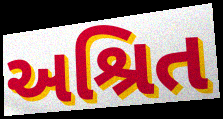
અશ્રિત